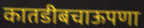
कातडीबचाऊपणा